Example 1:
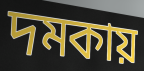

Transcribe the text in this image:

দমকায়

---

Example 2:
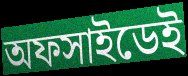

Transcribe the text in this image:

অফসাইডেই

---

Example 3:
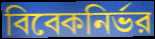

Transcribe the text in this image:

বিবেকনির্ভর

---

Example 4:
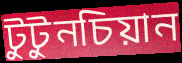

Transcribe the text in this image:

টুটুনচিয়ান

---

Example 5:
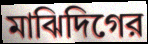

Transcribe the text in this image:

মাঝিদিগের